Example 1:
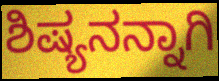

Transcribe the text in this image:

ಶಿಷ್ಯನನ್ನಾಗಿ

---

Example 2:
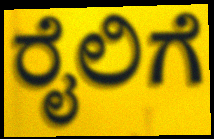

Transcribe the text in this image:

ರೈಲಿಗೆ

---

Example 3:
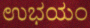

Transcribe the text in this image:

ಉಭಯಂ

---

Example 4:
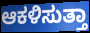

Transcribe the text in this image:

ಆಕಳಿಸುತ್ತಾ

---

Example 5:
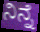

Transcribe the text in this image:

ನಿನ್ನೆ